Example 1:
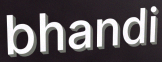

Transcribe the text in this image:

bhandi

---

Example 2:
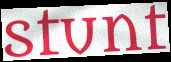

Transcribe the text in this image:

stunt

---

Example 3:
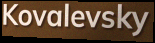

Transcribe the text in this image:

Kovalevsky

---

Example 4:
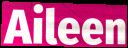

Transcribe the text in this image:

Aileen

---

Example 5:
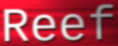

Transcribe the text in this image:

Reef